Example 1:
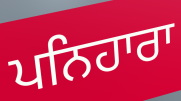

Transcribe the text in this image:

ਪਨਿਹਾਰਾ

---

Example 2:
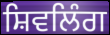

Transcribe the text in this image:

ਸ਼ਿਵਲਿੰਗ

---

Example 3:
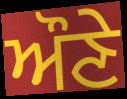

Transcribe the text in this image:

ਔਣੇ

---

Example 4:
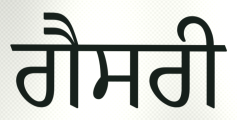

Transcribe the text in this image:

ਗੈਸਰੀ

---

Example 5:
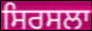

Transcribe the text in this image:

ਸਿਰਸਲਾ